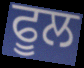
ਫੂਲ